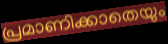
പ്രമാണിക്കാതെയും